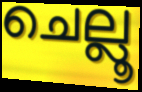
ചെല്ലൂ